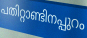
പതിറ്റാണ്ടിനപ്പുറം